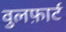
वुलफ़ार्ट